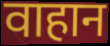
वाहान